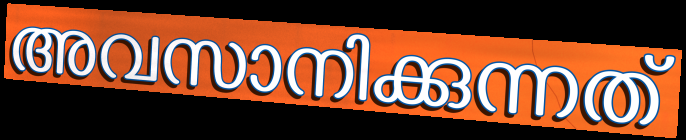
അവസാനിക്കുന്നത്